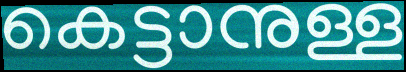
കെട്ടാനുള്ള